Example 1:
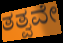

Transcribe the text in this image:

ತತ್ವವೇ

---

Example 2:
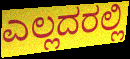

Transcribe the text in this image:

ಎಲ್ಲದರಲ್ಲಿ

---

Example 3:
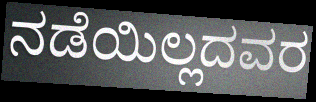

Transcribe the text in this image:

ನಡೆಯಿಲ್ಲದವರ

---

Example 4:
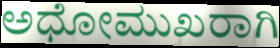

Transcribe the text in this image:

ಅಧೋಮುಖರಾಗಿ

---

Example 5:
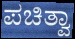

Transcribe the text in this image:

ಪಚಿತ್ವಾ